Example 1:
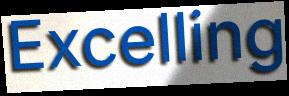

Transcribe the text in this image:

Excelling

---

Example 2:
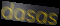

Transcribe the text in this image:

dasas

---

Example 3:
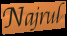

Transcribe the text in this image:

Najrul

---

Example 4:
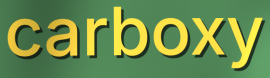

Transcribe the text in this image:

carboxy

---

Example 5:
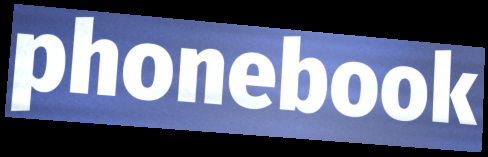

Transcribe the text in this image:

phonebook